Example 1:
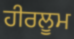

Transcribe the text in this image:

ਹੀਰਲੂਮ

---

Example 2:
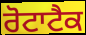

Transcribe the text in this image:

ਰੋਟਾਟੈਕ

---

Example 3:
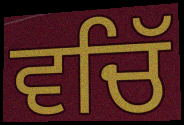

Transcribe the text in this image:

ਵਚਿੱ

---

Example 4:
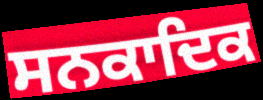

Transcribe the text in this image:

ਸਨਕਾਦਿਕ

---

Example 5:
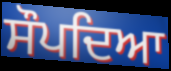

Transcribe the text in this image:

ਸੌਪਦਿਆ